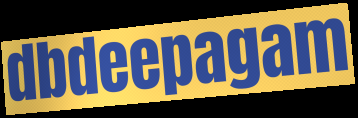
dbdeepagam